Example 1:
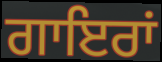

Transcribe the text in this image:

ਗਾਇਰਾਂ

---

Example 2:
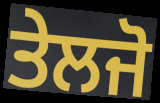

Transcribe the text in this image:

ਤੇਲਜੋ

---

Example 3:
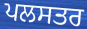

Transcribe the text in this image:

ਪਲਸਤਰ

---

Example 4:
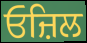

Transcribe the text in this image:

ਓਜ਼ਿਲ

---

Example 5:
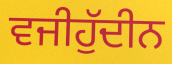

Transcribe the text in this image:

ਵਜੀਹੁੱਦੀਨ